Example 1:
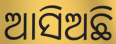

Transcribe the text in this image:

ଆସିଅଛି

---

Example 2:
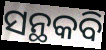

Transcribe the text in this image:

ସନ୍ଥକବି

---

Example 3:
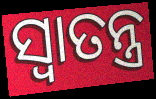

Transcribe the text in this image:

ସ୍ୱାତନ୍ତ୍ର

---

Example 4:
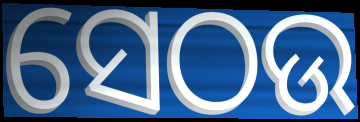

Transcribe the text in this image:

ସେଠଉ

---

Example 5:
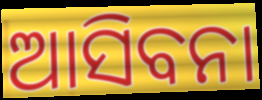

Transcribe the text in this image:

ଆସିବନା